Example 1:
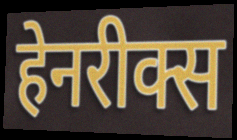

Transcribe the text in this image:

हेनरीक्स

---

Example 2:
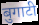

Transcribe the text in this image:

बुगाटी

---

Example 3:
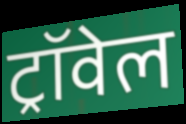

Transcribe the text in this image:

ट्रॉवेल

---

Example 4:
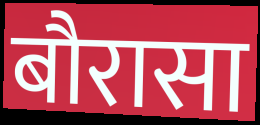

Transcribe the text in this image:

बौरासा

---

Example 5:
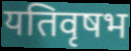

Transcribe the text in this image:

यतिवृषभ